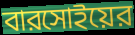
বারসোইয়ের